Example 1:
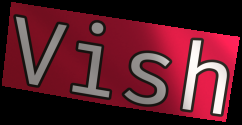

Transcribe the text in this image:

Vish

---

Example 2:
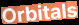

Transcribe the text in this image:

Orbitals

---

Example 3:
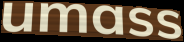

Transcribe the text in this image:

umass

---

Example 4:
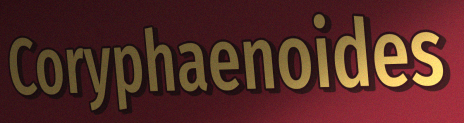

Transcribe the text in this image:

Coryphaenoides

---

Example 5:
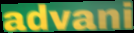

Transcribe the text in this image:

advani